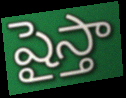
షైస్తా